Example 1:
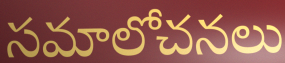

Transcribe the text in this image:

సమాలోచనలు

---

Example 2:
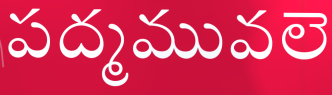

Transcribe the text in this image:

పద్మమువలె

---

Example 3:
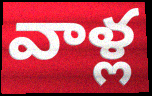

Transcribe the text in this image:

వాళ్ల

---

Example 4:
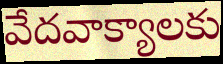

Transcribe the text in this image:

వేదవాక్యాలకు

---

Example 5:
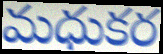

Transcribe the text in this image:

మధుకర